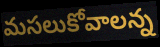
మసలుకోవాలన్న